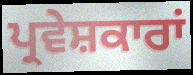
ਪ੍ਰਵੇਸ਼ਕਾਰਾਂ